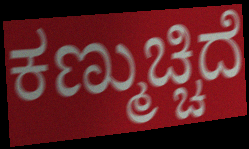
ಕಣ್ಮುಚ್ಚಿದೆ